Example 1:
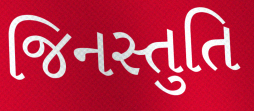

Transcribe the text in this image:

જિનસ્તુતિ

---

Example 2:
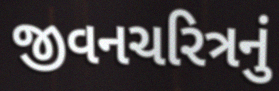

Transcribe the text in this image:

જીવનચરિત્રનું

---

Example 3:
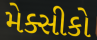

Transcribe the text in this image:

મેક્સીકો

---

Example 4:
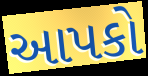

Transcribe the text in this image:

આપકો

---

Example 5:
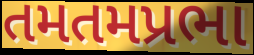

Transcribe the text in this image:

તમતમપ્રભા